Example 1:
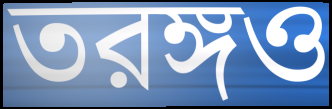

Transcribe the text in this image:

তরঙ্গও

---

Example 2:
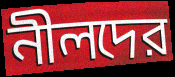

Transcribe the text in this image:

নীলদের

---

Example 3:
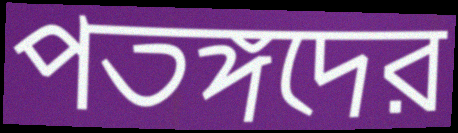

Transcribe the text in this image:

পতঙ্গদের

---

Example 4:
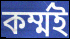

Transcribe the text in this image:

কর্ম্মই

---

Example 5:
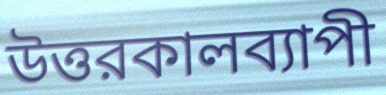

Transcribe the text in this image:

উত্তরকালব্যাপী